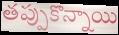
తప్పుకొన్నాయి